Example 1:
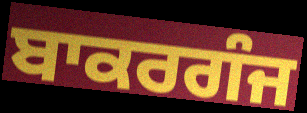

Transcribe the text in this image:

ਬਾਕਰਗੰਜ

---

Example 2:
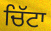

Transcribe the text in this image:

ਚਿੱਟਾ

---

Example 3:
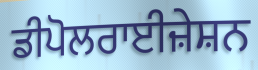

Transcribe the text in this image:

ਡੀਪੋਲਰਾਈਜ਼ੇਸ਼ਨ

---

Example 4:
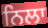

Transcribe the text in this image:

ਨਿਲਾ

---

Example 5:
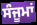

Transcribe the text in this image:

ਸੰਜੂਮਾਂ